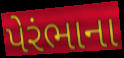
પેરંભાના